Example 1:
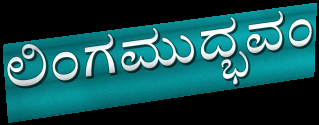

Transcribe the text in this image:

ಲಿಂಗಮುದ್ಭವಂ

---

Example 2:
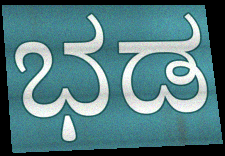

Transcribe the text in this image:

ಭಡ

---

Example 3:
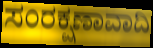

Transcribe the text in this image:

ಸಂರಕ್ಷಣಾವಾದಿ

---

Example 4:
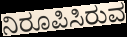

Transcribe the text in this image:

ನಿರೂಪಿಸಿರುವ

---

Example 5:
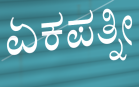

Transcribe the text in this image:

ಏಕಪತ್ನೀ